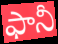
ఫానీ